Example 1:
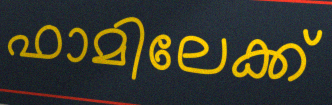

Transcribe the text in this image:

ഫാമിലേക്ക്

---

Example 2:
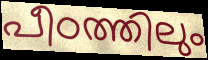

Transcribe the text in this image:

പീഠത്തിലും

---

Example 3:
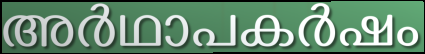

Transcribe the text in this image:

അർഥാപകർഷം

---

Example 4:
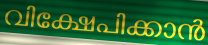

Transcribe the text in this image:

വിക്ഷേപിക്കാൻ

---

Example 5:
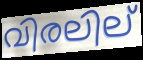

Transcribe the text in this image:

വിരലില്